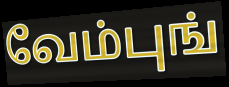
வேம்புங்